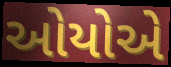
ઓયોએ